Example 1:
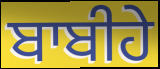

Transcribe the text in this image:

ਬਾਬੀਹੇ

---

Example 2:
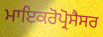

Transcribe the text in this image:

ਮਾਇਕਰੋਪ੍ਰੋਸੈਸਰ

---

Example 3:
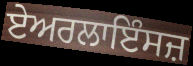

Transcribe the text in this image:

ਏਅਰਲਾਇੰਸਜ਼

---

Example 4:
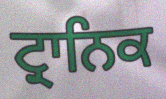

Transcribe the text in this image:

ਟ੍ਰਾਨਿਕ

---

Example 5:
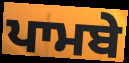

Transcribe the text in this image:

ਪਾਮਬੇ